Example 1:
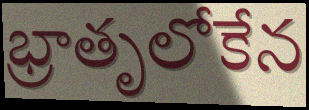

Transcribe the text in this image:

భ్రాతృలోకేన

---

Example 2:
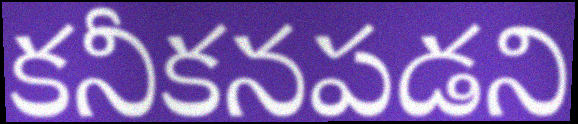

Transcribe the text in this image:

కనీకనపడని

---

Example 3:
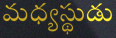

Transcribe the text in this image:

మధ్యస్థుడు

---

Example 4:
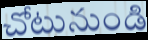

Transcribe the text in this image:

చోటునుండి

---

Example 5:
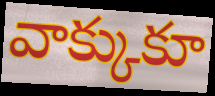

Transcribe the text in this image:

వాక్కుకూ